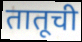
तातूची